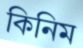
কিনিম